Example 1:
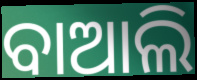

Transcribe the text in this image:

ବାଆଲି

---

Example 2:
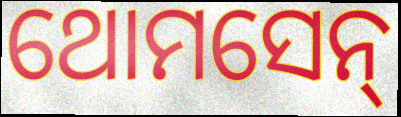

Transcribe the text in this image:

ଥୋମସେନ୍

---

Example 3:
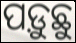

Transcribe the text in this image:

ପଡ଼ୁଛୁ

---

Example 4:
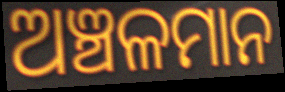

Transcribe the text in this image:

ଅଞ୍ଚଳମାନ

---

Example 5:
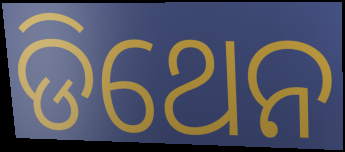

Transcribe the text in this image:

ଡିଥେନ